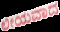
ಲೀಯವಾದ